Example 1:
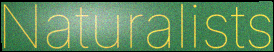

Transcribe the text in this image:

Naturalists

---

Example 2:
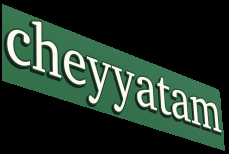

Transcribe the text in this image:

cheyyatam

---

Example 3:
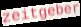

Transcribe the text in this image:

zeitgeber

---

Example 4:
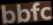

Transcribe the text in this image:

bbfc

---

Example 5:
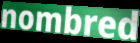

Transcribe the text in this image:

nombred